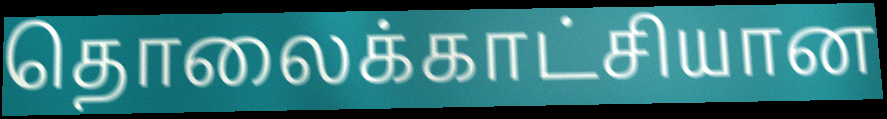
தொலைக்காட்சியான